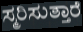
ಸ್ಮರಿಸುತ್ತಾರೆ